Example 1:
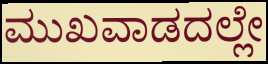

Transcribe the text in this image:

ಮುಖವಾಡದಲ್ಲೇ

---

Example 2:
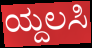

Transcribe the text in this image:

ಯ್ದಲಸಿ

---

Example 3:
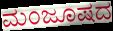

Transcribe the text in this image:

ಮಂಜೂಷದ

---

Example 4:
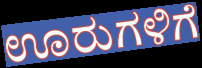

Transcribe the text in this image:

ಊರುಗಳಿಗೆ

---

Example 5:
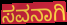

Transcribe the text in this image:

ಸವನಾಗಿ